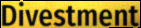
Divestment